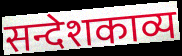
सन्देशकाव्य